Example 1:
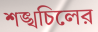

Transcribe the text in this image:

শঙ্খচিলের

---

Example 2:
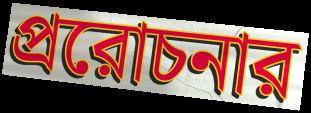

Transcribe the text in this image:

প্ররোচনার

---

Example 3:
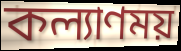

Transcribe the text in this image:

কল্যাণময়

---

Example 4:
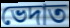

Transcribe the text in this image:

ভেদাত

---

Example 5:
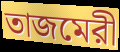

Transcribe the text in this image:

তাজমেরী